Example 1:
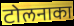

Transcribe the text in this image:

टोलनाका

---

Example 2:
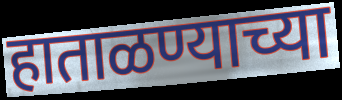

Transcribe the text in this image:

हाताळण्याच्या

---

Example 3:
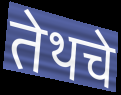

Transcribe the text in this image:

तेथचे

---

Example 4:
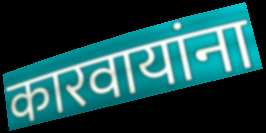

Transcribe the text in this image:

कारवायांना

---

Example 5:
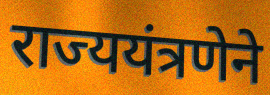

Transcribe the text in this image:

राज्ययंत्रणेने